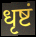
धृष्टं